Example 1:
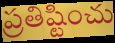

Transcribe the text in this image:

ప్రతిష్టించు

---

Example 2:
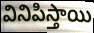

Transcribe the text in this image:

వినిపిస్తాయి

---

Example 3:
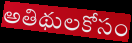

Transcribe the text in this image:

అతిథులకోసం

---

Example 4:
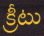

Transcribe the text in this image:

క్రీటు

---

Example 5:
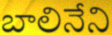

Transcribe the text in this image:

బాలినేని